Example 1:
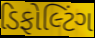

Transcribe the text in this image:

ડિફોલ્ટિંગ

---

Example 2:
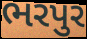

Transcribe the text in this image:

ભરપુર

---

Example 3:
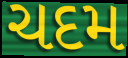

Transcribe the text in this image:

ચદમ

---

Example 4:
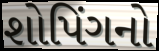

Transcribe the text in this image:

શોપિંગનો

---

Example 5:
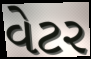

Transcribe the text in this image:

વેટર